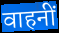
वाहनीं